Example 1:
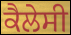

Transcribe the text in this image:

ਕੈਲੇਸੀ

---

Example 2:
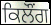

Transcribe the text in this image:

ਕਿਲੌਂਗ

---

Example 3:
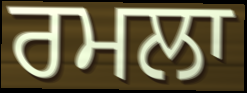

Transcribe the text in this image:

ਰਮਲਾ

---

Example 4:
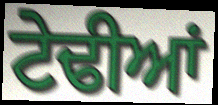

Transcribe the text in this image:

ਟੇਢੀਆਂ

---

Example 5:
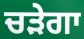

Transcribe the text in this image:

ਚੜੇਗਾ